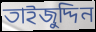
তাইজুদ্দিন